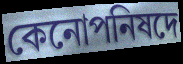
কেনোপনিষদে